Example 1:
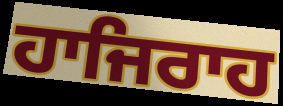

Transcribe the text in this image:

ਹਾਜਿਰਾਹ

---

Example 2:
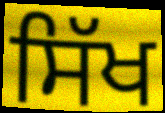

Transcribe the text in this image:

ਸਿੱਖ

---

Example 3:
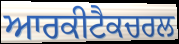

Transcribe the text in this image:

ਆਰਕੀਟੈਕਚਰਲ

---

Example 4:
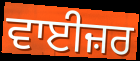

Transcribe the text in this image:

ਵਾਈਜ਼ਰ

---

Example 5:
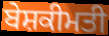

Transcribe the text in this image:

ਬੇਸ਼ਕੀਮਤੀ